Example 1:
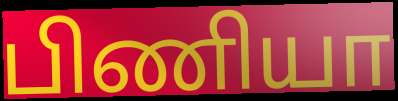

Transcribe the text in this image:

பிணியா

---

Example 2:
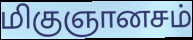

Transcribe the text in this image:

மிகுஞானசம்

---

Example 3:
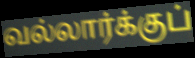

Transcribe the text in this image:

வல்லார்க்குப்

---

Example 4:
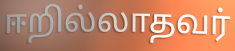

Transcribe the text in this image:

ஈறில்லாதவர்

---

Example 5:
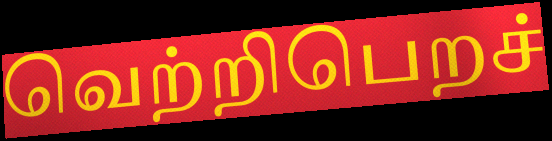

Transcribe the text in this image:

வெற்றிபெறச்